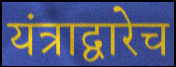
यंत्राद्वारेच